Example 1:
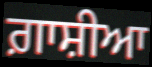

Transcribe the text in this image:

ਗ਼ਾਸ਼ੀਆ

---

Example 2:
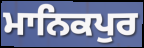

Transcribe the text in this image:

ਮਾਨਿਕਪੁਰ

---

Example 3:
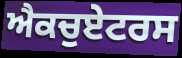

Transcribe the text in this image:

ਐਕਚੁਏਟਰਸ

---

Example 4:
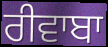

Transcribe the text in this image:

ਰੀਵਾਬਾ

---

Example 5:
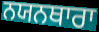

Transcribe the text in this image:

ਨਯਨਥਾਰਾ